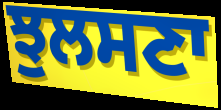
ਝੁਲਸਣਾ